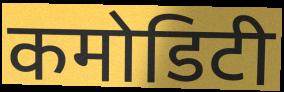
कमोडिटी